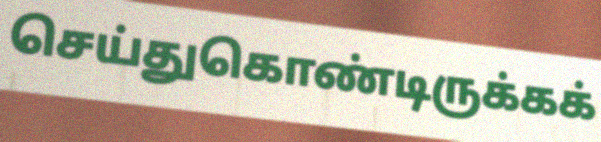
செய்துகொண்டிருக்கக்